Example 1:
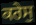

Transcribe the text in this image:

ਕਰੇਸੁ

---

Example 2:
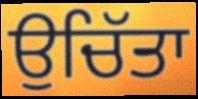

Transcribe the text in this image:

ਉਚਿੱਤਾ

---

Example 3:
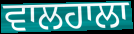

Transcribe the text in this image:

ਵਾਲਹਾਲਾ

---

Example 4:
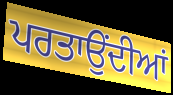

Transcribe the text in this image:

ਪਰਤਾਉਂਦੀਆਂ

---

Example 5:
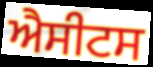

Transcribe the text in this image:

ਐਸੀਟਸ